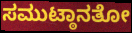
ಸಮುಟ್ಠಾನತೋ